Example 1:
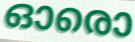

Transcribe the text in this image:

ഓരൊ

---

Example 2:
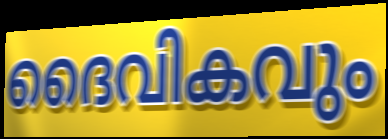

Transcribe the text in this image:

ദൈവികവും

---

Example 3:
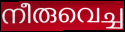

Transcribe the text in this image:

നീരുവെച്ച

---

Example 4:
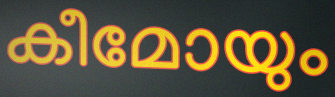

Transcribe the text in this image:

കീമോയും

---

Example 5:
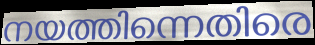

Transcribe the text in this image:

നയത്തിന്നെതിരെ